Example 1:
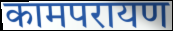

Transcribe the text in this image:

कामपरायण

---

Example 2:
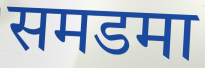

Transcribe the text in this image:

समडमा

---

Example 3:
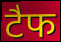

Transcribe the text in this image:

टैफ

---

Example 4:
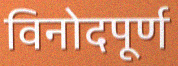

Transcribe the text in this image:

विनोदपूर्ण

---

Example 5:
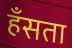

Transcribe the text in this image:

हॅंसता